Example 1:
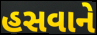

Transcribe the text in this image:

હસવાને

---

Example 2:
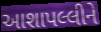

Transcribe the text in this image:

આશાપલ્લીને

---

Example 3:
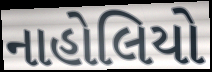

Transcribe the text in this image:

નાહોલિયો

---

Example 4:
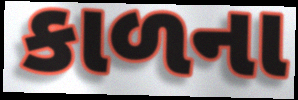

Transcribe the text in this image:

કાળના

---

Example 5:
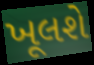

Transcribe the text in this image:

ખૂલશે